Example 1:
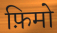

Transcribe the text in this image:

फ़िमो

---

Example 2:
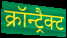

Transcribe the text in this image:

क्रॉन्ट्रैक्ट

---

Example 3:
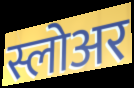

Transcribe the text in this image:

स्लोअर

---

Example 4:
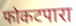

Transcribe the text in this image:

फोकटपारा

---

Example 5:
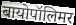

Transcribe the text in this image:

बायोपॉलिमर